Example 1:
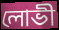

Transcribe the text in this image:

লোভী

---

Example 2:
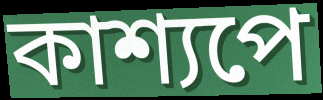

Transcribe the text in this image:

কাশ্যপে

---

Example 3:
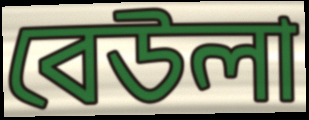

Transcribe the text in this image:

বেউলা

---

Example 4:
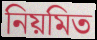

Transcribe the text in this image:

নিয়মিত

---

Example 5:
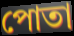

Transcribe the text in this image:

পোতা